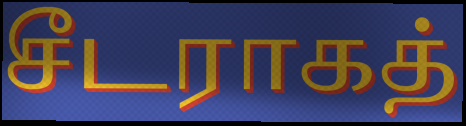
சீடராகத்